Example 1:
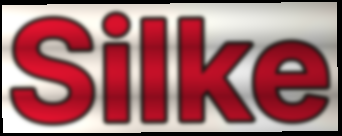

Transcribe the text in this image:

Silke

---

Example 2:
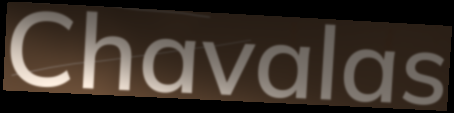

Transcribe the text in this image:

Chavalas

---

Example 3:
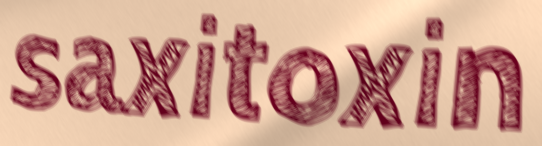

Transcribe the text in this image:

saxitoxin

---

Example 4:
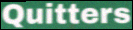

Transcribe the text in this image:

Quitters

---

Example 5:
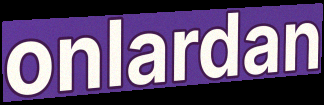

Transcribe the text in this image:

onlardan